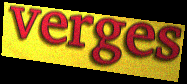
verges